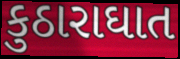
કુઠારાઘાત